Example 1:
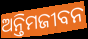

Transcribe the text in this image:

ଅନ୍ତିମଜୀବନ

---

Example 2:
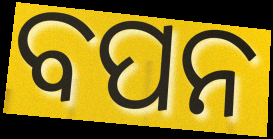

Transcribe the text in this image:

ବପନ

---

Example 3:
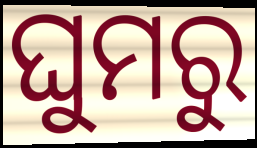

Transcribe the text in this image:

ଘୁମରୁ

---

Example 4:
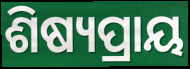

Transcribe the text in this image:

ଶିଷ୍ୟପ୍ରାୟ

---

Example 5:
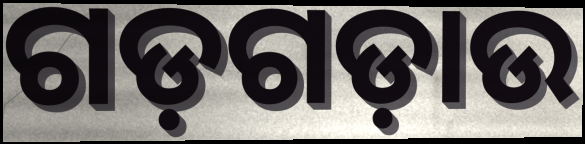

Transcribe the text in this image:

ଗଡ଼ଗଡ଼ାଉ